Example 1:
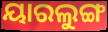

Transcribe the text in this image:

ୟାରଲୁଙ୍ଗ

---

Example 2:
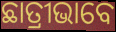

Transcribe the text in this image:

ଛାତ୍ରୀଭାବେ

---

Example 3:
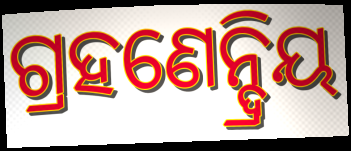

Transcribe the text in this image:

ଗ୍ରହଣେନ୍ଦ୍ରିୟ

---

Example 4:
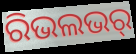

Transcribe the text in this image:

ରିଭଲଭର୍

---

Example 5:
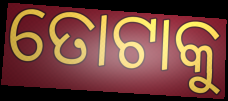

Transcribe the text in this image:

ତୋଟାକୁ